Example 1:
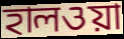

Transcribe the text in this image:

হালওয়া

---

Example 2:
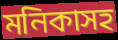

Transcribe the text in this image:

মনিকাসহ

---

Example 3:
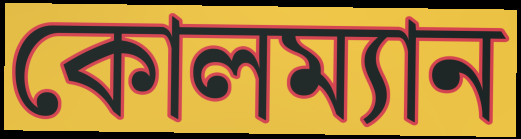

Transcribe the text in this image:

কোলম্যান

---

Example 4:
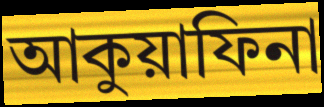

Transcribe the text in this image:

আকুয়াফিনা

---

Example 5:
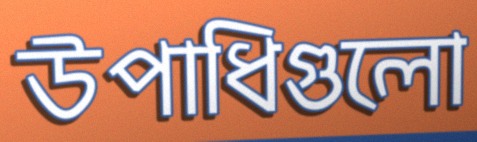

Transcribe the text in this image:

উপাধিগুলো